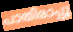
പാതിരാപ്പൂ